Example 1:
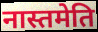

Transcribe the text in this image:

नास्तमेति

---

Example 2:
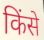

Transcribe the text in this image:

किंसे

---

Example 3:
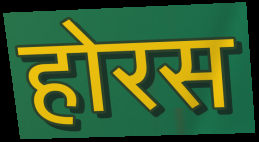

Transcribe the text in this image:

होरस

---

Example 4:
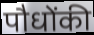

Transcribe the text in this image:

पौधोंकी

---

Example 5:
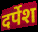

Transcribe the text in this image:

दर्पेश